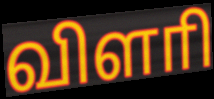
விளரி